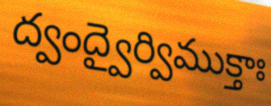
ద్వంద్వైర్విముక్తాః